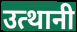
उत्थानी